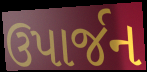
ઉપાર્જન